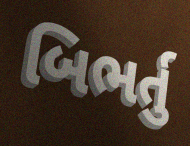
બિભર્તુ